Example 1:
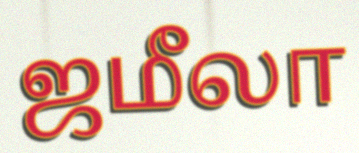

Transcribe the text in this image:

ஜமீலா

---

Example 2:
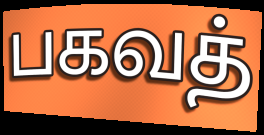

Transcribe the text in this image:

பகவத்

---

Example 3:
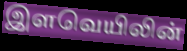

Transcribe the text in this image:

இளவெயிலின்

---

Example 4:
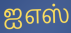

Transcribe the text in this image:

ஐஎஸ்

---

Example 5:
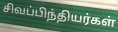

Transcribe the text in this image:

சிவப்பிந்தியர்கள்